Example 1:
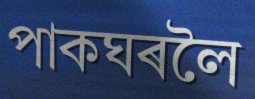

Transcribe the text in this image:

পাকঘৰলৈ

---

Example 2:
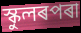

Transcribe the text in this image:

স্কুলৰপৰা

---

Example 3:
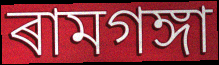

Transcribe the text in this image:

ৰামগঙ্গা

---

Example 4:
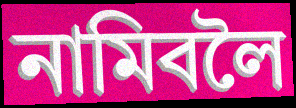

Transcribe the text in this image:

নামিবলৈ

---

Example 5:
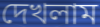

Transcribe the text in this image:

দেখলাম